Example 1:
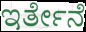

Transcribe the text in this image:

ಇರ್ತೇನೆ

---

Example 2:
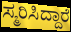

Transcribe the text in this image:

ಸ್ಮರಿಸಿದ್ದಾರೆ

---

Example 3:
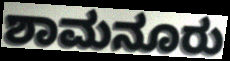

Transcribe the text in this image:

ಶಾಮನೂರು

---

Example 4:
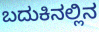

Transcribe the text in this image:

ಬದುಕಿನಲ್ಲಿನ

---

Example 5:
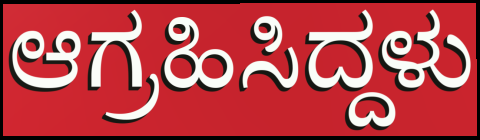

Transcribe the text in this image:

ಆಗ್ರಹಿಸಿದ್ದಳು